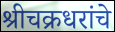
श्रीचक्रधरांचे